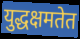
युद्धक्षमतेत